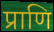
प्राणि